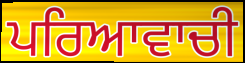
ਪਰਿਆਵਾਚੀ